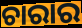
ଚାରାର